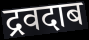
द्रवदाब